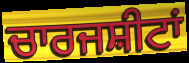
ਚਾਰਜਸ਼ੀਟਾਂ